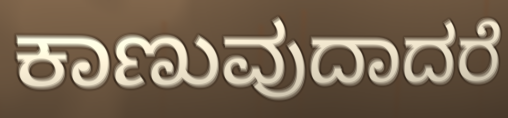
ಕಾಣುವುದಾದರೆ